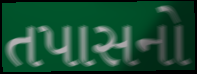
તપાસનો